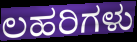
ಲಹರಿಗಳು